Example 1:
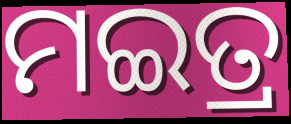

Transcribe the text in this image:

ମଇତ୍ର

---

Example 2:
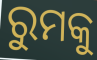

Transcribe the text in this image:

ରୁମକୁ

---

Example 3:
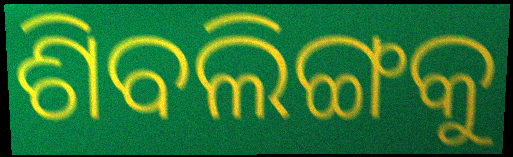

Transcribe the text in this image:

ଶିବଲିଙ୍ଗକୁ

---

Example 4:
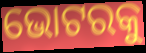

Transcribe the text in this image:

ଭୋଟରକୁ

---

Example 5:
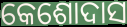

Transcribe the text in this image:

କେଶୋଦାସ